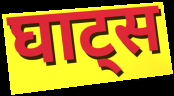
घाट्स